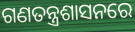
ଗଣତନ୍ତ୍ରଶାସନରେ